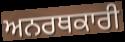
ਅਨਰਥਕਾਰੀ